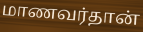
மாணவர்தான்